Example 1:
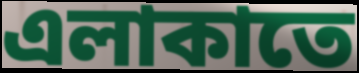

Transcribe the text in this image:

এলাকাতে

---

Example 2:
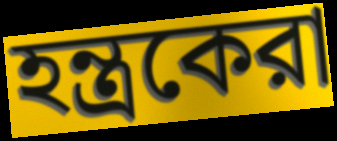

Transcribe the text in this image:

হন্ত্রকেরা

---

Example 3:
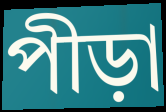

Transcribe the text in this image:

পীড়া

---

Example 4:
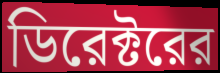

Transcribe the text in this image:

ডিরেক্টরের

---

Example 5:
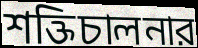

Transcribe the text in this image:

শক্তিচালনার